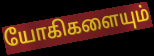
யோகிகளையும்